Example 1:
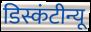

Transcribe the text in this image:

डिस्कंटीन्यू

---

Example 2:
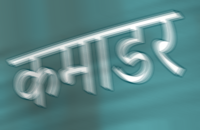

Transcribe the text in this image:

कमाडर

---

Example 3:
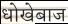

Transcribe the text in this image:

धोखेबाज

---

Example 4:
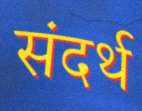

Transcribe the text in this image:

संदर्थ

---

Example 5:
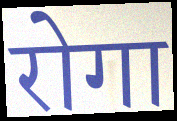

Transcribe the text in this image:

रोगा